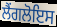
ਲੈਂਗਲੋਇਸ